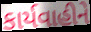
કાર્યવાહીને